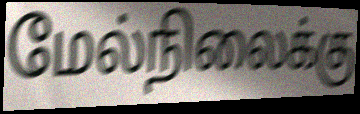
மேல்நிலைக்கு